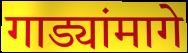
गाड्यांमागे